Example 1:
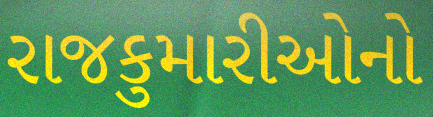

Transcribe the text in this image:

રાજકુમારીઓનો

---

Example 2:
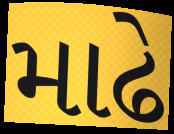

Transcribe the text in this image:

માઢે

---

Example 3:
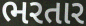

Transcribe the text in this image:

ભરતાર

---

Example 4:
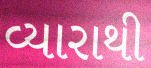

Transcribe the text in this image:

વ્યારાથી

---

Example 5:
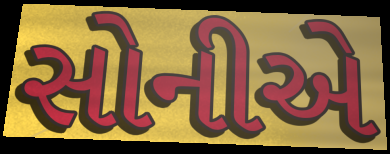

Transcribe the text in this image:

સોનીએ